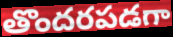
తొందరపడగా